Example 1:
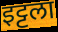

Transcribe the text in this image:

इट्टला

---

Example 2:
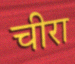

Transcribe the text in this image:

चीरा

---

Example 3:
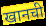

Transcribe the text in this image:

खानची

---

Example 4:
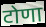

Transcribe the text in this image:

टोणा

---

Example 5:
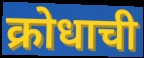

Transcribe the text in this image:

क्रोधाची